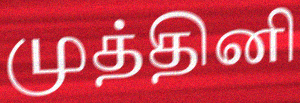
முத்தினி